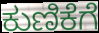
ಕುಣಿಕೆಗೆ